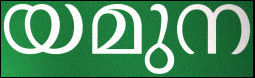
യമുന